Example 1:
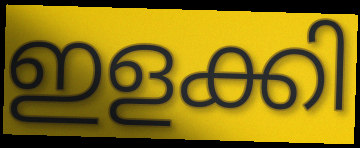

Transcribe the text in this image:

ഇളക്കി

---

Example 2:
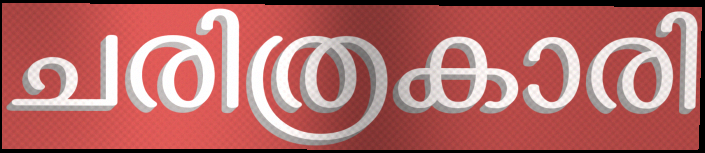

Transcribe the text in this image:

ചരിത്രകാരി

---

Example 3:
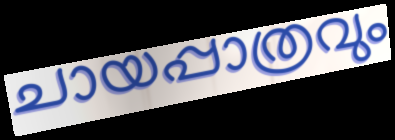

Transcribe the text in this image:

ചായപ്പാത്രവും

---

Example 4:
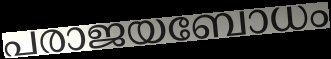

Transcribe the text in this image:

പരാജയബോധം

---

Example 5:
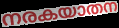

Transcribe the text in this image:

നരകയാതന